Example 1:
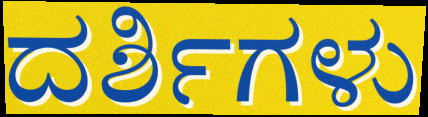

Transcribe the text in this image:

ದರ್ಶಿಗಳು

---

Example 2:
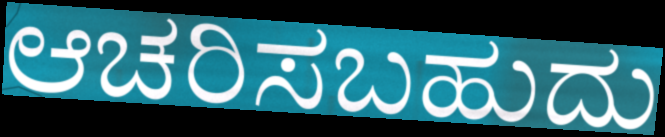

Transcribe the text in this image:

ಆಚರಿಸಬಹುದು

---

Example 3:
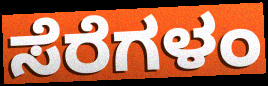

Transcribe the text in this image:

ಸೆರೆಗಳಂ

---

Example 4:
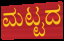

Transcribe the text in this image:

ಮಟ್ಟದ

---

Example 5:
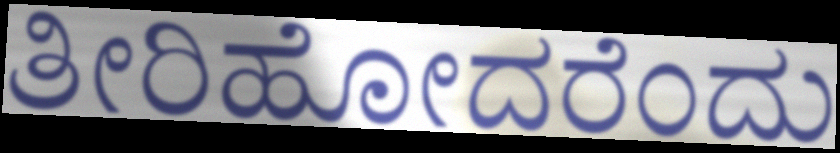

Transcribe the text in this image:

ತೀರಿಹೋದರೆಂದು